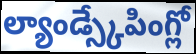
ల్యాండ్స్కేపింగ్లో